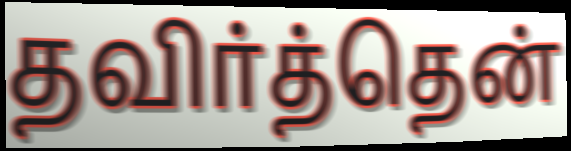
தவிர்த்தென்